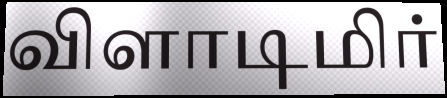
விளாடிமிர்